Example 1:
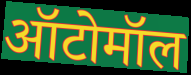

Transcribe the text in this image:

ऑटोमॉल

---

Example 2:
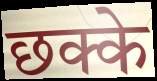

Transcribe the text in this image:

छक्के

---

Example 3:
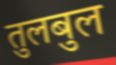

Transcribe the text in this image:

तुलबुल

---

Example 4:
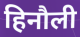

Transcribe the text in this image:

हिनौली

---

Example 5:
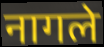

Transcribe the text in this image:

नागले